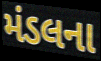
મંડલના